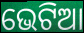
ଭେଟିଆ